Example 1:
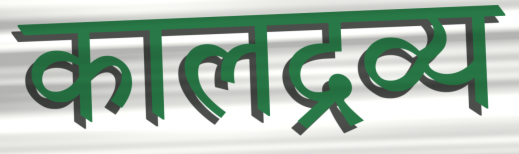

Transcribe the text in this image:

कालद्रव्य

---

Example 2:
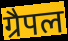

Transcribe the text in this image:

ग्रैपल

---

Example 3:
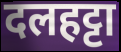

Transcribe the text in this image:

दलहट्टा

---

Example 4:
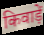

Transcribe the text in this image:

किवाड़ें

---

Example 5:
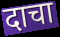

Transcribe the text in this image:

दाचा